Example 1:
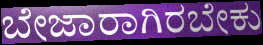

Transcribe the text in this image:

ಬೇಜಾರಾಗಿರಬೇಕು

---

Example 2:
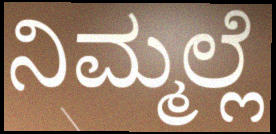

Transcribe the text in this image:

ನಿಮ್ಮಲ್ಲೆ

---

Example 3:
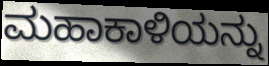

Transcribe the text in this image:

ಮಹಾಕಾಳಿಯನ್ನು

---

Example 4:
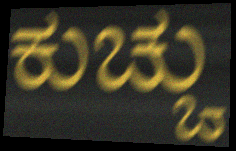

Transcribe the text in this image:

ಕುಚ್ಚು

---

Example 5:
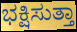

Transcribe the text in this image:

ಭಕ್ಷಿಸುತ್ತಾ